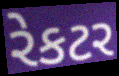
રેકટર